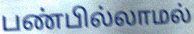
பண்பில்லாமல்